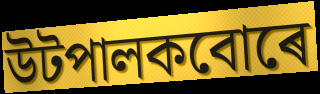
উটপালকবোৰে